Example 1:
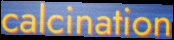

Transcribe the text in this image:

calcination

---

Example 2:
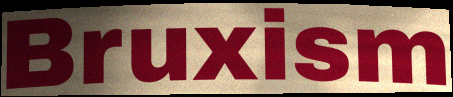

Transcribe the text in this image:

Bruxism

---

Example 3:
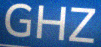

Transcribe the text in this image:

GHZ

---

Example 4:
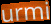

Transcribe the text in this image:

urmi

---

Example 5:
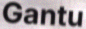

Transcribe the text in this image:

Gantu